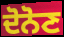
ਦੋਨੋਣ